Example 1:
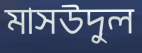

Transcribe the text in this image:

মাসউদুল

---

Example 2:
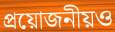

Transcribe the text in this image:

প্রয়োজনীয়ও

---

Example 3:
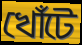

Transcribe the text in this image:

খোঁটে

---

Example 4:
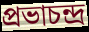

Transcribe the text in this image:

প্রভাচন্দ্র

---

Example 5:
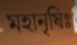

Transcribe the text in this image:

মহানৃষিঃ